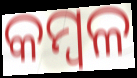
କମ୍ବଳ